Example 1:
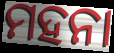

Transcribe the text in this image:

ମହନା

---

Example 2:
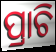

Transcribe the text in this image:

ପ୍ରାଚି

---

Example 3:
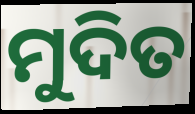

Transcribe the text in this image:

ମୁଦିତ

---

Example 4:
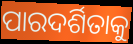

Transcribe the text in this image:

ପାରଦର୍ଶିତାକୁ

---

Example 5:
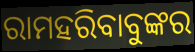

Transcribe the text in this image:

ରାମହରିବାବୁଙ୍କର